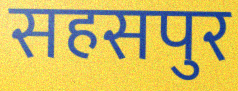
सहसपुर